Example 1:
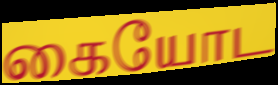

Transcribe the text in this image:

கையோட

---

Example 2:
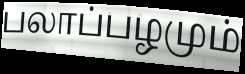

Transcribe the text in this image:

பலாப்பழமும்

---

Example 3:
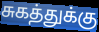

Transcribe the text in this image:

சுகத்துக்கு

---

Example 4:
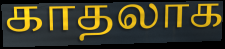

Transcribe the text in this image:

காதலாக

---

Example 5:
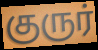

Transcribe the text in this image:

குருர்